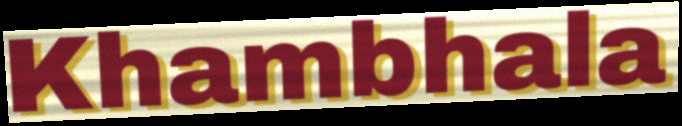
Khambhala